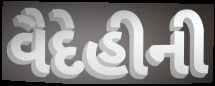
વૈદેહીની